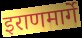
इराणमार्गे